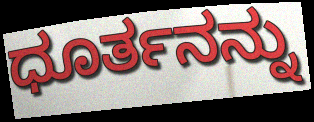
ಧೂರ್ತನನ್ನು